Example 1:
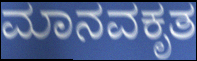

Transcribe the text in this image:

ಮಾನವಕೃತ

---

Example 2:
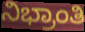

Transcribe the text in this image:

ನಿಭ್ರಾಂತಿ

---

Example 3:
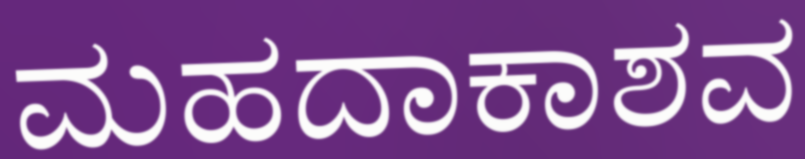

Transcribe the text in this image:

ಮಹದಾಕಾಶವ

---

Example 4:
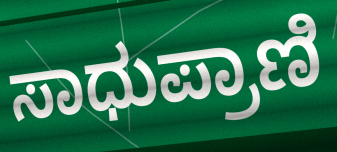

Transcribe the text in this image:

ಸಾಧುಪ್ರಾಣಿ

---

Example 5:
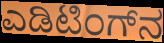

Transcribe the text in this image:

ಎಡಿಟಿಂಗ್‌ನ